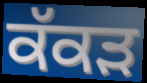
ਕੱਕਡ਼